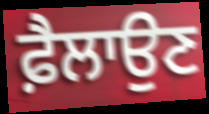
ਫ਼ੈਲਾਉਣ